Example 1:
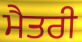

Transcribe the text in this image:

ਮੈਤਰੀ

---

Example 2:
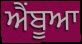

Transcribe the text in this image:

ਐਂਬੂਆ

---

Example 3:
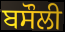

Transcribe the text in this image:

ਬਸੌਲੀ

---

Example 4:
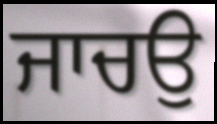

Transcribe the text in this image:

ਜਾਚਉ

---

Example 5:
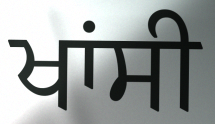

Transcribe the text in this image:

ਖਾਂਸੀ